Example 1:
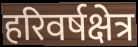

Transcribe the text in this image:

हरिवर्षक्षेत्र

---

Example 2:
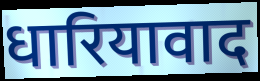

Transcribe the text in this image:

धारियावाद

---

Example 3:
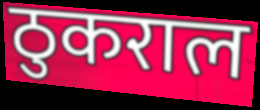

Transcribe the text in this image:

ठुकराल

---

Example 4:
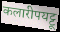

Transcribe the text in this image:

कलारीपयट्टू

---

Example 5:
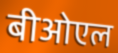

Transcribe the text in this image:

बीओएल